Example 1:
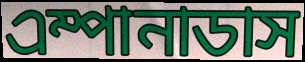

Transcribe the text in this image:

এম্পানাডাস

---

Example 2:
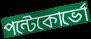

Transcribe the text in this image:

পন্টেকোর্ভো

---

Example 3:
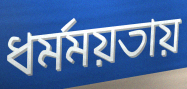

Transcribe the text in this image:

ধর্মময়তায়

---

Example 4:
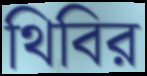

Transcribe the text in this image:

থিবির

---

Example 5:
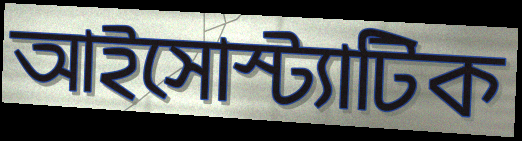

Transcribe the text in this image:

আইসোস্ট্যাটিক